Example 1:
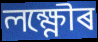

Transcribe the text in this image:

লক্ষ্ণৌৰ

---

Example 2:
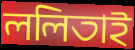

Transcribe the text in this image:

ললিতাই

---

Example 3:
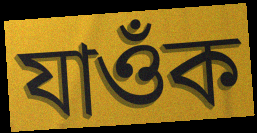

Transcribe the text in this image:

যাওঁক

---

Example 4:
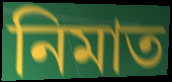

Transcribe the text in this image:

নিমাত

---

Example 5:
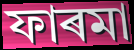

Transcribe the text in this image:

ফাৰমা